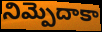
నిమ్పెదాకా